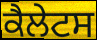
ਕੈਲੇਟਸ